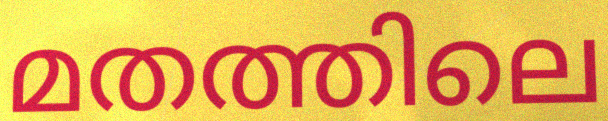
മതത്തിലെ